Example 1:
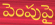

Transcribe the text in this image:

పెంపుపై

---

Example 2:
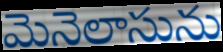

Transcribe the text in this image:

మెనెలాసును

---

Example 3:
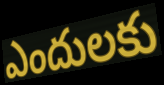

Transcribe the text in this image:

ఎందులకు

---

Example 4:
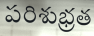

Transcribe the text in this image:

పరిశుభ్రత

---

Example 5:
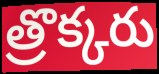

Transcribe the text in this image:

త్రొక్కరు